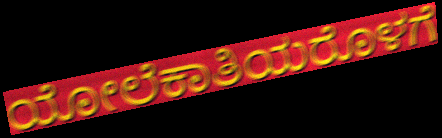
ಯೋಲೆಕಾತಿಯರೊಳಗೆ